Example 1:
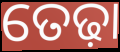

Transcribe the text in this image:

ତେଢ଼ା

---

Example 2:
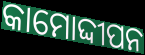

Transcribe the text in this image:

କାମୋଦ୍ଦୀପନ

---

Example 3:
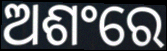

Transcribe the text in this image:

ଅଶଂରେ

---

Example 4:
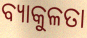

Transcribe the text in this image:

ବ୍ୟାକୁଳତା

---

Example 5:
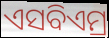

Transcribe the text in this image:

ଏସବିଏମ୍ର